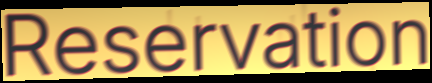
Reservation